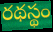
రథస్థం